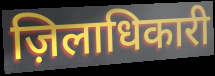
ज़िलाधिकारी